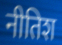
नीतिश